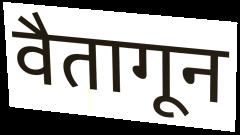
वैतागून